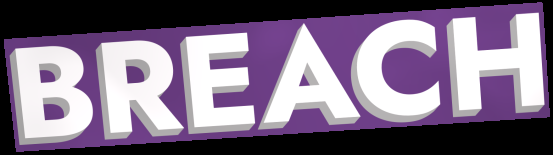
BREACH